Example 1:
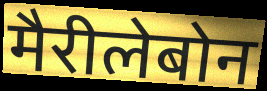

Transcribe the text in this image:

मैरीलेबोन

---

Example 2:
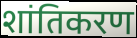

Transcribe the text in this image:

शांतिकरण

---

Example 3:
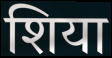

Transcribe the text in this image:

शिया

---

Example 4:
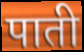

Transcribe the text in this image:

पाती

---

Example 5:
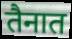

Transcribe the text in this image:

तैनात